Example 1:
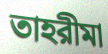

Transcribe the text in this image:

তাহরীমা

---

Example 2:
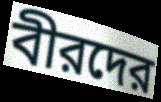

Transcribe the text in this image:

বীরদের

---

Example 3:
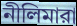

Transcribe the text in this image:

নীলিমারা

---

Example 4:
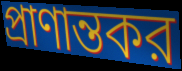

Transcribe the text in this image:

প্রাণান্তকর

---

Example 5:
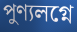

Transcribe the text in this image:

পুণ্যলগ্নে